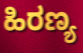
ಹಿರಣ್ಯ